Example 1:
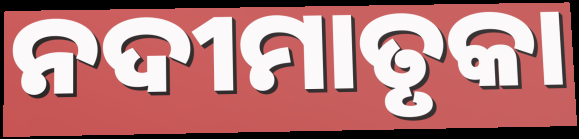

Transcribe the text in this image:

ନଦୀମାତୃକା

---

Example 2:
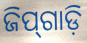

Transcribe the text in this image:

ଜିପ୍‌ଗାଡ଼ି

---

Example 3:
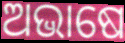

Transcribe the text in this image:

ଅଭାଷେ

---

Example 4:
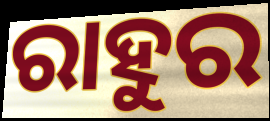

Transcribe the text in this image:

ରାହୁର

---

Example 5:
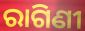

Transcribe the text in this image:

ରାଗିଣୀ